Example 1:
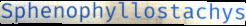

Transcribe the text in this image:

Sphenophyllostachys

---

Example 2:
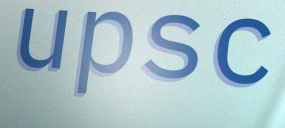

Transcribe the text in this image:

upsc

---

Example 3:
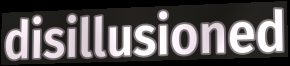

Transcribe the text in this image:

disillusioned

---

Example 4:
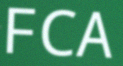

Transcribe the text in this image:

FCA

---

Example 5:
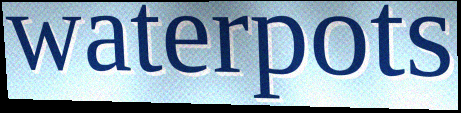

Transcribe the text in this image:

waterpots